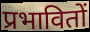
प्रभावितों